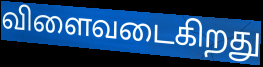
விளைவடைகிறது